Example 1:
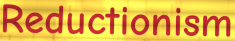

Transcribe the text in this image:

Reductionism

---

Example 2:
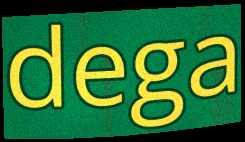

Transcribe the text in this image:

dega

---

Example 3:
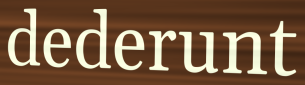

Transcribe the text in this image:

dederunt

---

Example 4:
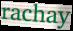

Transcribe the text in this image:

rachay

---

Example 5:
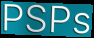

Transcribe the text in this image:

PSPs